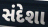
સંદેશા